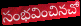
సంభవించినచో